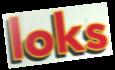
loks